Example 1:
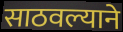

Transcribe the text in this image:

साठवल्याने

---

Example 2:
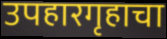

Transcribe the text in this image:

उपहारगृहाचा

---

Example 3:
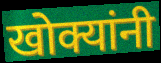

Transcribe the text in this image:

खोक्यांनी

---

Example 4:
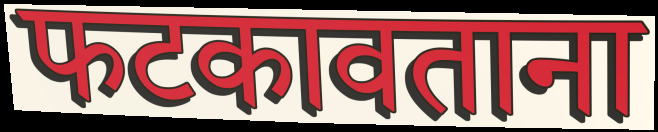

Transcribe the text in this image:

फटकावताना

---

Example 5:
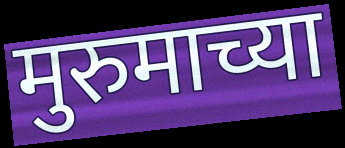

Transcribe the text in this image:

मुरुमाच्या